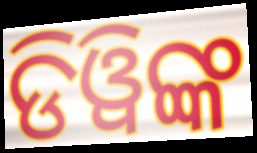
ଡିୱିଙ୍କ